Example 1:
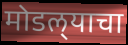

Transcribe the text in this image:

मोडल्याचा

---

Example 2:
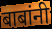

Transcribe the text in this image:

बाबांनी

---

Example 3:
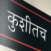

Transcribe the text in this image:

कुशीतच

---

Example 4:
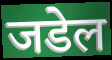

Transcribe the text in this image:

जडेल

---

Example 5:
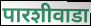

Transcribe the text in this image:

पारशीवाडा